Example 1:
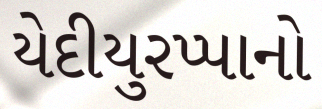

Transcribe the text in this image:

યેદીયુરપ્પાનો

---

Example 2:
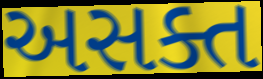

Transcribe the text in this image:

અસક્ત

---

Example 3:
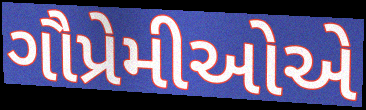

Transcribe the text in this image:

ગૌપ્રેમીઓએ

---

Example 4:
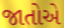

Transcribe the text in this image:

જાતોએ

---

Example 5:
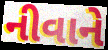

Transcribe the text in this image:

નીવાને